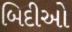
બિદીઓ